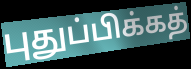
புதுப்பிக்கத்